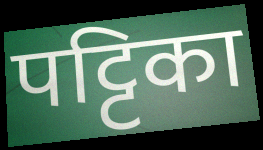
पट्टिका